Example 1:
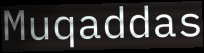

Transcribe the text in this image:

Muqaddas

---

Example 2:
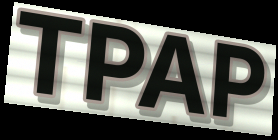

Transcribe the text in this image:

TPAP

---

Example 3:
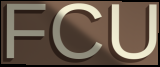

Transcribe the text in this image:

FCU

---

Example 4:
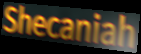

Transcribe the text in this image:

Shecaniah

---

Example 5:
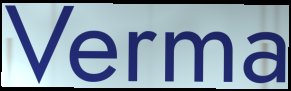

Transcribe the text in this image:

Verma